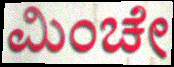
ಮಿಂಚೇ